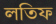
লতিফ